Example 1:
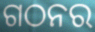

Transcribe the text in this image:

ଗଠନର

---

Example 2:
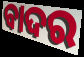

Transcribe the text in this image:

ବାଦର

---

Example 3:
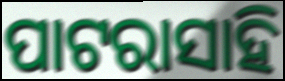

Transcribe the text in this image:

ପାଟରାସାହି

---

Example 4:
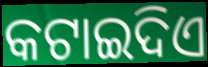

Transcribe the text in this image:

କଟାଇଦିଏ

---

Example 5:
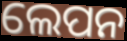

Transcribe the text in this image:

ଲେପନ